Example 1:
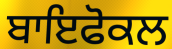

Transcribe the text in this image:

ਬਾਇਫੋਕਲ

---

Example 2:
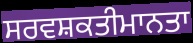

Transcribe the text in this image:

ਸਰਵਸ਼ਕਤੀਮਾਨਤਾ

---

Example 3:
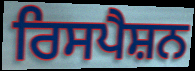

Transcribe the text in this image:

ਰਿਸਪੈਸ਼ਨ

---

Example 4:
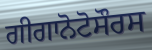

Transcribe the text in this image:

ਗੀਗਾਨੋਟੋਸੌਰਸ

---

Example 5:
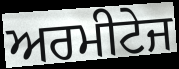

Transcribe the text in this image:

ਅਰਮੀਟੇਜ